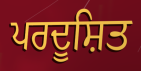
ਪਰਦੂਸ਼ਿਤ